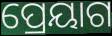
ପ୍ରେୟାଗ